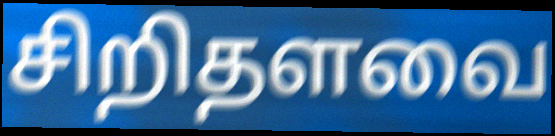
சிறிதளவை